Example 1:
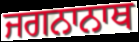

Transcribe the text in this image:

ਜਗਨਾਨਾਥ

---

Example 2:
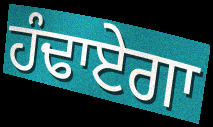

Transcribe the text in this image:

ਹੰਢਾਏਗਾ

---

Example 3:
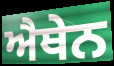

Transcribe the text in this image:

ਐਥੇਨ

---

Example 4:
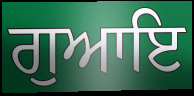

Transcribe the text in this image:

ਗੁਆਇ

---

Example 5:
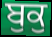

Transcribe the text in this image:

ਬੁਕੁ